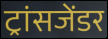
ट्रांसजेंडर